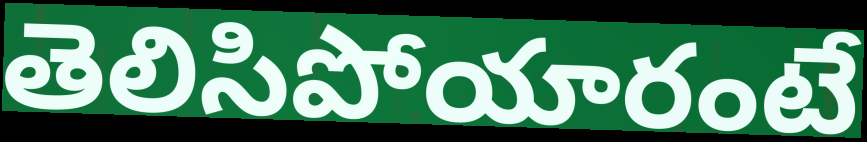
తెలిసిపోయారంటే